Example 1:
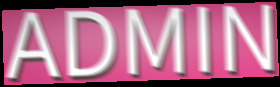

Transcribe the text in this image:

ADMIN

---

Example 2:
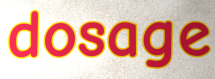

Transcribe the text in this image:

dosage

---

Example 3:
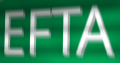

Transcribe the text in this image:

EFTA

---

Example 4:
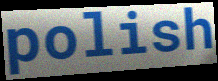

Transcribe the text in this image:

polish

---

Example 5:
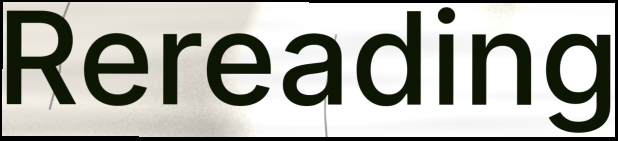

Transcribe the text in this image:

Rereading